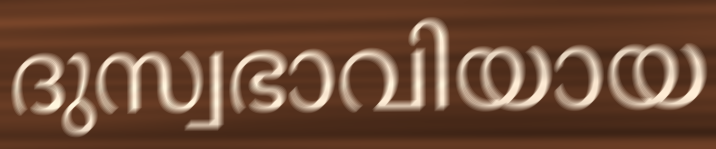
ദുസ്വഭാവിയായ